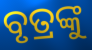
ବୃତ୍ରଙ୍କୁ